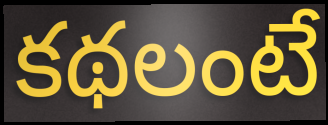
కథలంటే